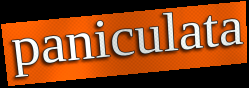
paniculata